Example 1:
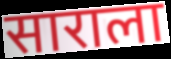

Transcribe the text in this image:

साराला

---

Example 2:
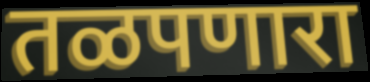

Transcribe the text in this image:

तळपणारा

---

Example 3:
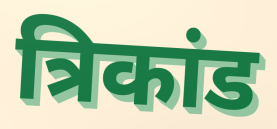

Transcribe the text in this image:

त्रिकांड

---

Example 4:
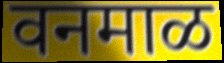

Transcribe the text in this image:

वनमाळ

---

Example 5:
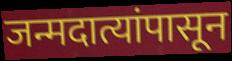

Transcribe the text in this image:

जन्मदात्यांपासून